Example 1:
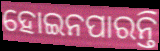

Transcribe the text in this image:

ହୋଇନପାରନ୍ତି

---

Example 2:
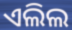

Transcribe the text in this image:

ଏଲିଲ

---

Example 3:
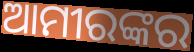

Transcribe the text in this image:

ଆମୀରଙ୍କର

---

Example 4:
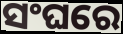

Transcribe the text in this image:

ସଂଘରେ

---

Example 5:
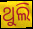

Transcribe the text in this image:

ଥୁଲି